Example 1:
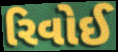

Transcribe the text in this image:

રિવોઈ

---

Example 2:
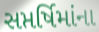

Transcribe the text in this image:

સપ્તર્ષિમાંના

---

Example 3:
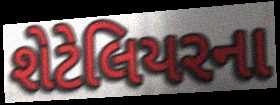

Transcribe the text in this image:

શેટેલિયરના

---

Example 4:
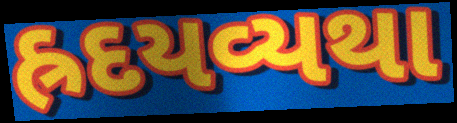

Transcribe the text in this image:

હ્રદયવ્યથા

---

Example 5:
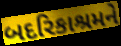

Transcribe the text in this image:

બદરિકાશ્રમને